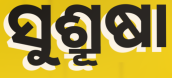
ସୁଶ୍ରୂଷା